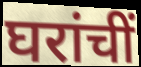
घरांचीं